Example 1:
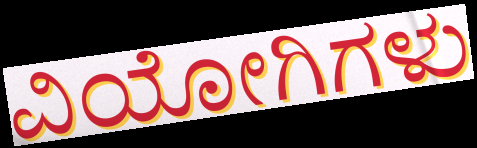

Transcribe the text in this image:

ವಿಯೋಗಿಗಳು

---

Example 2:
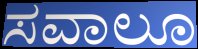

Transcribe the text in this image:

ಸವಾಲೂ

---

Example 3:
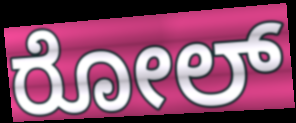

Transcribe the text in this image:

ರೋಲ್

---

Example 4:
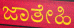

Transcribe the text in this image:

ಜಾತೇಹಿ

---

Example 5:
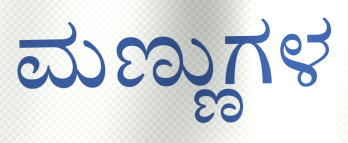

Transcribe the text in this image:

ಮಣ್ಣುಗಳ